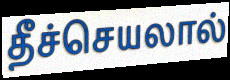
தீச்செயலால்